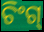
ଚିଂଗ୍